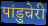
पांडुचेरी